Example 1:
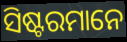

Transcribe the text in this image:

ସିଷ୍ଟରମାନେ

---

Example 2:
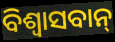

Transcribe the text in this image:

ବିଶ୍ଵାସବାନ୍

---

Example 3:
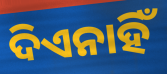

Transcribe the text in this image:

ଦିଏନାହିଁ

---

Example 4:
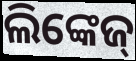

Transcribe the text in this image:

ଲିଙ୍କେଜ୍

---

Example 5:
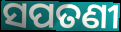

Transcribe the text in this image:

ସପତଣୀ